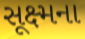
સૂક્ષ્મના